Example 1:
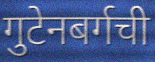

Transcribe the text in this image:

गुटेनबर्गची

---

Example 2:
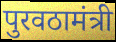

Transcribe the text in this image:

पुरवठामंत्री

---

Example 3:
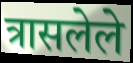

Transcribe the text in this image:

त्रासलेले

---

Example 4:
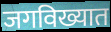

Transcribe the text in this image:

जगविख्यात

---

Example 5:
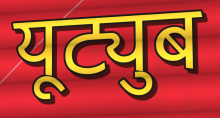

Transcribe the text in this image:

यूट्युब